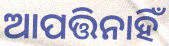
ଆପତ୍ତିନାହିଁ